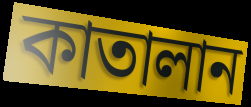
কাতালান